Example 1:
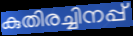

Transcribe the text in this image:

കുതിരച്ചിനപ്പ്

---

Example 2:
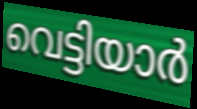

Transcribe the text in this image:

വെട്ടിയാർ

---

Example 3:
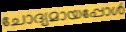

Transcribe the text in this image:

ചോദ്യമായപ്പോൾ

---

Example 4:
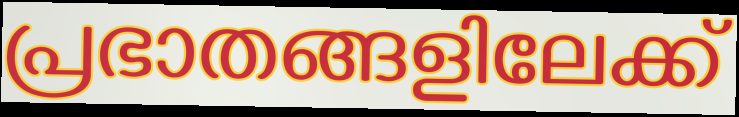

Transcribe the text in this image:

പ്രഭാതങ്ങളിലേക്ക്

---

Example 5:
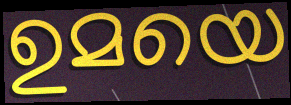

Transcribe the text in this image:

ഉമയെ